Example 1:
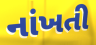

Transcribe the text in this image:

નાંખતી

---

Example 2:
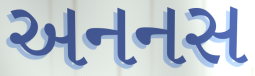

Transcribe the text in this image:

અનનસ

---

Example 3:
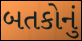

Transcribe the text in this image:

બતકોનું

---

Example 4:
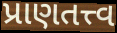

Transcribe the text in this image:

પ્રાણતત્ત્વ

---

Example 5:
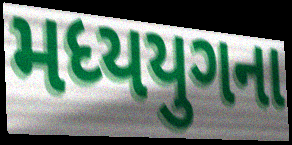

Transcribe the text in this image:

મધ્યયુગના